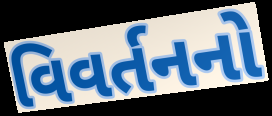
વિવર્તનનો